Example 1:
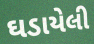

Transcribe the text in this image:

ઘડાયેલી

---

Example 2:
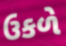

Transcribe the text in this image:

ઉકળે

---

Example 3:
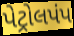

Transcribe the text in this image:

પેટ્રોલપંપ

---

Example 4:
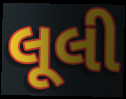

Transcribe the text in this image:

લૂલી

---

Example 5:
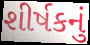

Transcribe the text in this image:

શીર્ષકનું